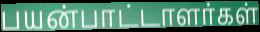
பயன்பாட்டாளர்கள்